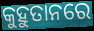
କୁହୁତାନରେ